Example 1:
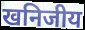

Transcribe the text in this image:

खनिजीय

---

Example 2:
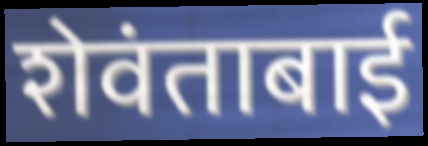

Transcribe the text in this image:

शेवंताबाई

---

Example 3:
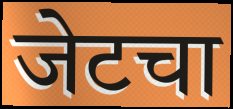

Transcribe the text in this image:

जेटचा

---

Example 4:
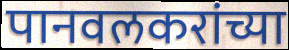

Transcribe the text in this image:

पानवलकरांच्या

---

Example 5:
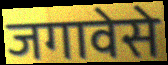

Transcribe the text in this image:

जगावेसे